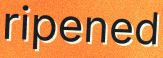
ripened